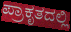
ಪ್ರಾಕೃತದಲ್ಲಿ